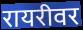
रायरीवर